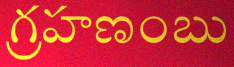
గ్రహణంబు